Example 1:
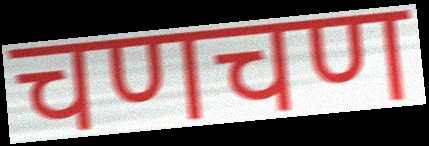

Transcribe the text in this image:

चणचण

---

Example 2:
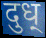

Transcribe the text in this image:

दुध्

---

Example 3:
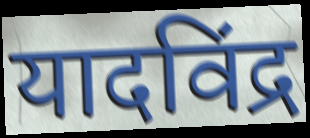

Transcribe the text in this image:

यादविंद्र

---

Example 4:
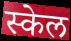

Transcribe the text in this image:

स्केल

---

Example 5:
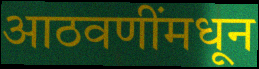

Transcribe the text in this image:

आठवणींमधून